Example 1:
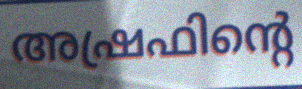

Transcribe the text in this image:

അഷ്രഫിന്റെ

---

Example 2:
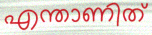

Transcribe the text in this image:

എന്താണിത്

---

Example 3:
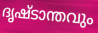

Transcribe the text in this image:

ദൃഷ്ടാന്തവും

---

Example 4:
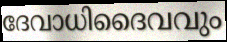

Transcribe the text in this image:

ദേവാധിദൈവവും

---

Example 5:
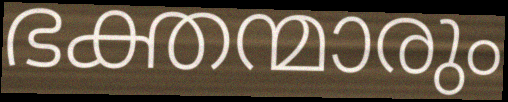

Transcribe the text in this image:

ഭക്തന്മാരും